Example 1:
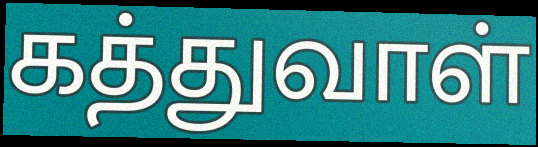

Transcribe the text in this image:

கத்துவாள்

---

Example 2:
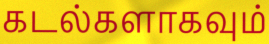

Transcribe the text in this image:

கடல்களாகவும்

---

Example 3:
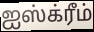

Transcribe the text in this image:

ஐஸ்க்ரீம்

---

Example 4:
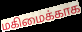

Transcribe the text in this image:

மகிமைக்காக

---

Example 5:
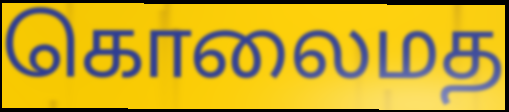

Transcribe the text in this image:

கொலைமத